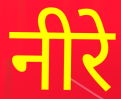
नीरे